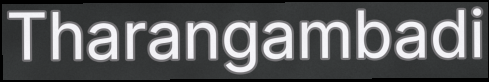
Tharangambadi